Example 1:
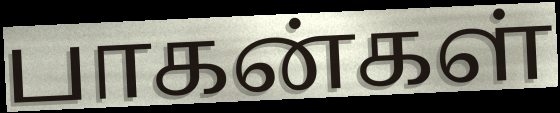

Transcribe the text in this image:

பாகன்கள்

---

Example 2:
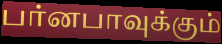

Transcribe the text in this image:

பர்னபாவுக்கும்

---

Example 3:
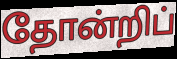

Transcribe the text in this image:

தோன்றிப்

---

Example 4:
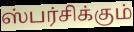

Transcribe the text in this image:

ஸ்பர்சிக்கும்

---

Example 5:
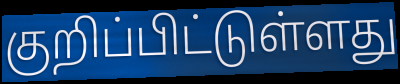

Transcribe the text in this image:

குறிப்பிட்டுள்ளது